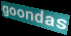
goondas